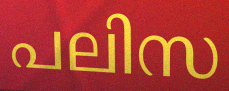
പലിസ